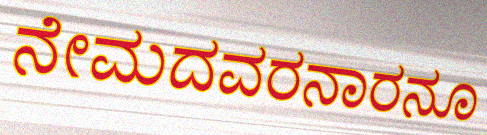
ನೇಮದವರನಾರನೂ